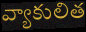
వ్యాకులిత